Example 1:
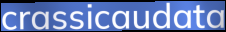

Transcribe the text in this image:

crassicaudata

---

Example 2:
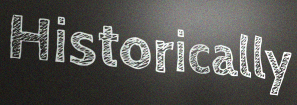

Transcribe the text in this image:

Historically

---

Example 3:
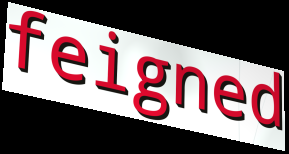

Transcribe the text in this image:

feigned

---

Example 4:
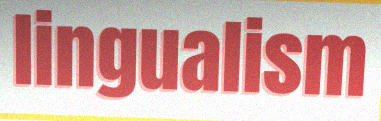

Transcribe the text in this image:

lingualism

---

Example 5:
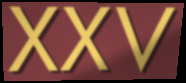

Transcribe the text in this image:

XXV